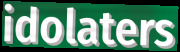
idolaters